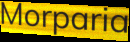
Morparia